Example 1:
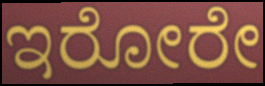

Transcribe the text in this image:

ಇರೋರೇ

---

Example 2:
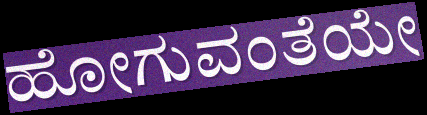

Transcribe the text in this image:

ಹೋಗುವಂತೆಯೇ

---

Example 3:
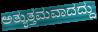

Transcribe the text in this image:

ಅತ್ಯುತ್ತಮವಾದದ್ದು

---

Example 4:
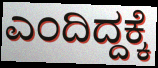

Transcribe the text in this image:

ಎಂದಿದ್ದಕ್ಕೆ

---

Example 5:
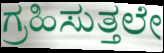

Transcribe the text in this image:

ಗ್ರಹಿಸುತ್ತಲೇ